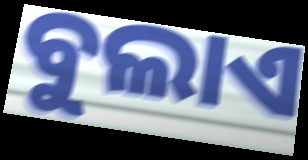
ବୁଲାଏ